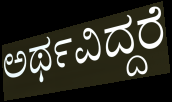
ಅರ್ಥವಿದ್ದರೆ